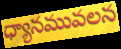
ధ్యానమువలన